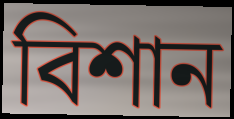
বিশান